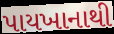
પાયખાનાથી